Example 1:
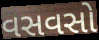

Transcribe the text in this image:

વસવસો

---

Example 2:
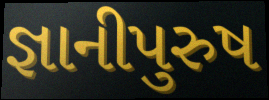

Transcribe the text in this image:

જ્ઞાનીપુરુષ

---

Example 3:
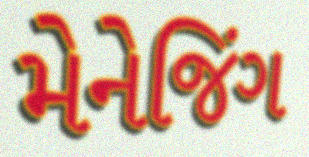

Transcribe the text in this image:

મેનેજિંગ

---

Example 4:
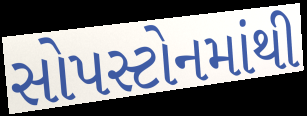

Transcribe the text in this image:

સોપસ્ટોનમાંથી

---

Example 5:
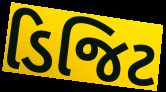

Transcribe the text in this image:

ડિજિટ